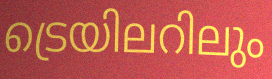
ട്രെയിലറിലും